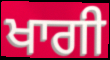
ਖਾਗੀ